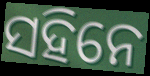
ସହିନେ